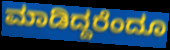
ಮಾಡಿದ್ದರೆಂದೂ